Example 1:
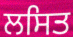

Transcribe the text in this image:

ਲਸਿਤ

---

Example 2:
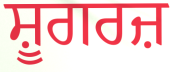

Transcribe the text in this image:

ਸ਼ੂਗਰਜ਼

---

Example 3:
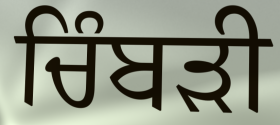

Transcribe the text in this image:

ਚਿੰਬੜੀ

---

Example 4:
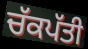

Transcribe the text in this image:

ਚੱਕਪੱਤੀ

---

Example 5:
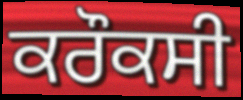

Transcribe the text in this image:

ਕਰੌਕਸੀ